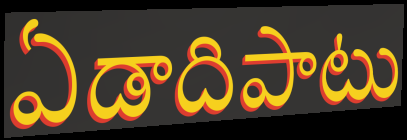
ఏడాదిపాటు